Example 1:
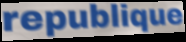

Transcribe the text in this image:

republique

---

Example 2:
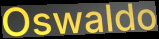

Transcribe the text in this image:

Oswaldo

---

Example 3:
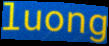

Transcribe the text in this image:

luong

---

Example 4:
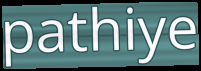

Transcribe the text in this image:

pathiye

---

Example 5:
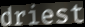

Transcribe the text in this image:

driest